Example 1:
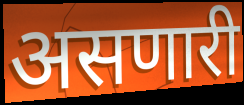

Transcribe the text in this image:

असणारी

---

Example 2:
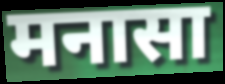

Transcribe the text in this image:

मनासा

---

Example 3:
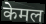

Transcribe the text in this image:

केमल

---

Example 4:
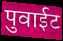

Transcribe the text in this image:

पुवाईट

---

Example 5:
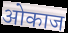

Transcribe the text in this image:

ओकाज